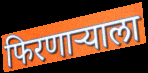
फिरणाऱ्याला